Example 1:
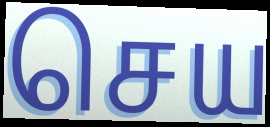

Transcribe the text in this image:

செய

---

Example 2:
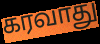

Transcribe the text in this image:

கரவாது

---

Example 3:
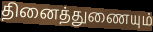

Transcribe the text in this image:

தினைத்துணையும்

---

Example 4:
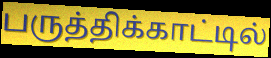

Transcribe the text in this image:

பருத்திக்காட்டில்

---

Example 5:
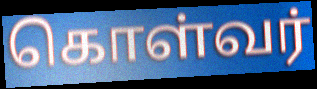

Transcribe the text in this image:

கொள்வர்